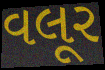
વલૂર